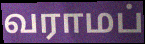
வராமப்